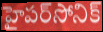
హైపర్‌సోనిక్